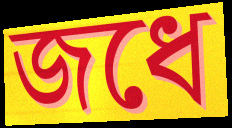
জধে